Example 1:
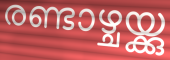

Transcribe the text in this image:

രണ്ടാഴ്ചയ്ക്കു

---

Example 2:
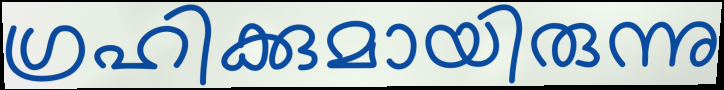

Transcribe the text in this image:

ഗ്രഹിക്കുമായിരുന്നു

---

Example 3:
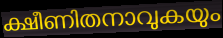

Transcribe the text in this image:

ക്ഷീണിതനാവുകയും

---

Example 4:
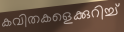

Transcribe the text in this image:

കവിതകളെക്കുറിച്ച്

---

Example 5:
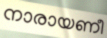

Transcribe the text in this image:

നാരായണീ